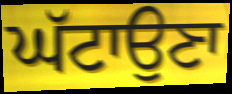
ਘੱਟਾਉਣਾ